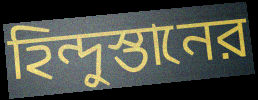
হিন্দুস্তানের